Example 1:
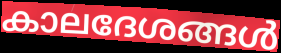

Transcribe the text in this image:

കാലദേശങ്ങൾ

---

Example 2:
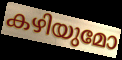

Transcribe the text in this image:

കഴിയുമോ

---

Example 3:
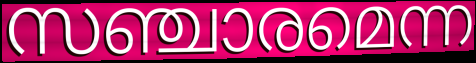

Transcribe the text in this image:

സഞ്ചാരമെന്ന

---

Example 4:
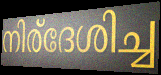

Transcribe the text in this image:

നിര്ദേശിച്ച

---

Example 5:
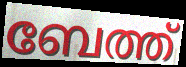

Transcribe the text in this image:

ബേത്ത്